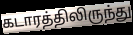
கடாரத்திலிருந்து